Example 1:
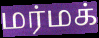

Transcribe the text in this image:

மர்மக்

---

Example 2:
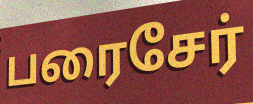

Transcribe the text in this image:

பரைசேர்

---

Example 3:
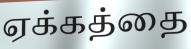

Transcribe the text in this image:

ஏக்கத்தை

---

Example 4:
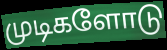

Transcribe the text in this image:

முடிகளோடு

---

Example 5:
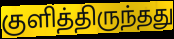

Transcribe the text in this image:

குளித்திருந்தது